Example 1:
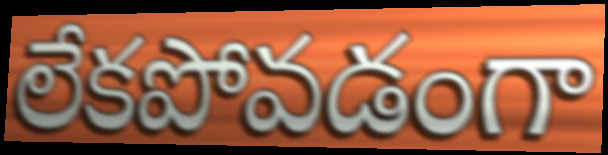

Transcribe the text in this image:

లేకపోవడంగా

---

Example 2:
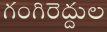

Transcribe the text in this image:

గంగిరెద్దుల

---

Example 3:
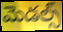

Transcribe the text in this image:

మెడల్స్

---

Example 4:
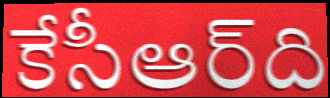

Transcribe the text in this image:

కేసీఆర్‌ది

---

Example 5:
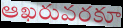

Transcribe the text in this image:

ఆఖరువరకూ